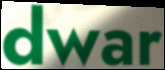
dwar